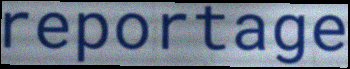
reportage